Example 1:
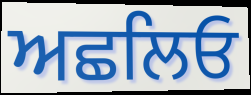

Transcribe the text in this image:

ਅਛਲਿਓ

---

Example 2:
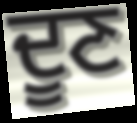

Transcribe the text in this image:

ਦੂਣ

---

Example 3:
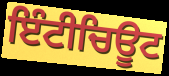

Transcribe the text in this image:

ਇੰਟੀਚਿਊਟ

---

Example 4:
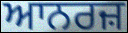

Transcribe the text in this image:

ਆਨਰਜ਼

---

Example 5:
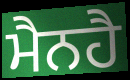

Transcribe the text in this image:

ਮੈਨਹੈ